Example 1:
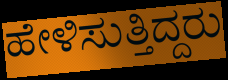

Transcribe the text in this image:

ಹೇಳಿಸುತ್ತಿದ್ದರು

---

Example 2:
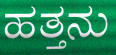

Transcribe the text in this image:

ಹತ್ತನು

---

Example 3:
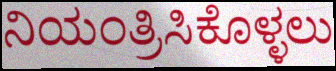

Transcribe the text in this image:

ನಿಯಂತ್ರಿಸಿಕೊಳ್ಳಲು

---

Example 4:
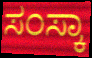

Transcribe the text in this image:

ಸಂಸ್ಕಾ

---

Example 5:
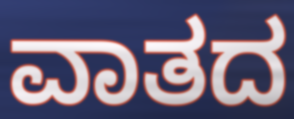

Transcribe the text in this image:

ವಾತದ